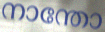
നാന്തോ